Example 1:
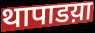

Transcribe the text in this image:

थापाडय़ा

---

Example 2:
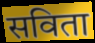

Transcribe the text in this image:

सविता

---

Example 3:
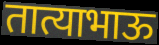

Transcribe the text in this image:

तात्याभाऊ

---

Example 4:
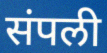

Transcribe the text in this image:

संपली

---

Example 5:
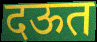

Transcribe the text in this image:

दऊत